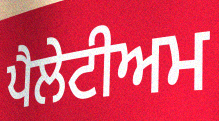
ਪੈਲੇਟੀਅਮ